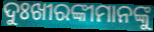
ଦୁଃଖୀରଙ୍କୀମାନଙ୍କୁ